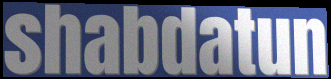
shabdatun